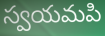
స్వయమపి